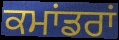
ਕਮਾਂਡਰਾਂ